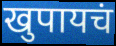
खुपायचं